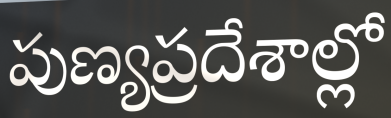
పుణ్యప్రదేశాల్లో